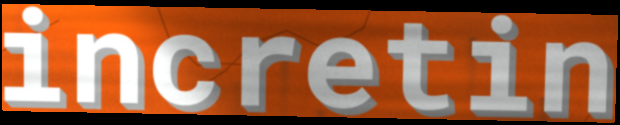
incretin